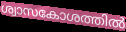
ശ്വാസകോശത്തിൽ